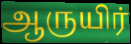
ஆருயிர்